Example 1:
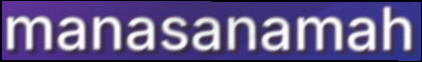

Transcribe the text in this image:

manasanamah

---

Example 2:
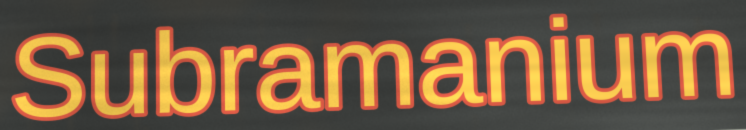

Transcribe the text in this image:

Subramanium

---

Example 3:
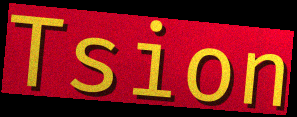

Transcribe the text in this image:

Tsion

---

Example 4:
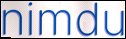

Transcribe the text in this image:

nimdu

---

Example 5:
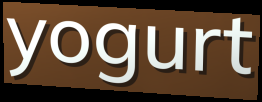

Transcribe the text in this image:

yogurt